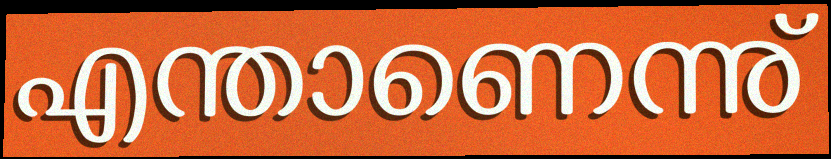
എന്താണെന്നു്